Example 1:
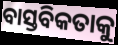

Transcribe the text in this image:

ବାସ୍ତବିକତାକୁ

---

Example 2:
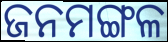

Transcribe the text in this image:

ଜନମଙ୍ଗଳ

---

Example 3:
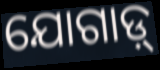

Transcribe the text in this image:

ଯୋଗାଡ଼୍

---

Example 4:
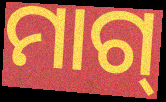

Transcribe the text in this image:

ମାଗ୍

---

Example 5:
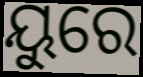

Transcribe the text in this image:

ୟୁରେ